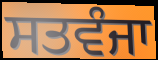
ਸਤਵੰਜਾ